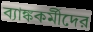
ব্যাঙ্ককর্মীদের